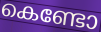
കെണ്ടോ